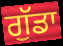
ਗੁੱਡਾ